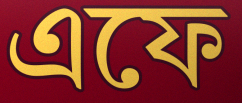
এফে